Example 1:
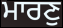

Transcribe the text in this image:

ਮਾਰਣੁ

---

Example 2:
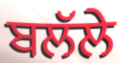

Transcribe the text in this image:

ਬਲੱਲੇ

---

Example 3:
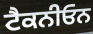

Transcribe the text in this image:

ਟੈਕਨੀਓਨ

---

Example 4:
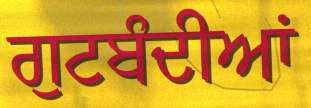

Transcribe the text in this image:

ਗੁਟਬੰਦੀਆਂ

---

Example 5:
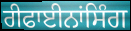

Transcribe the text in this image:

ਰੀਫਾਈਨਾਂਸਿੰਗ